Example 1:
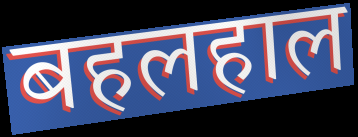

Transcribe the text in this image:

बहलहाल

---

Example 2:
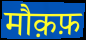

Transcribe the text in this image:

मौक़फ़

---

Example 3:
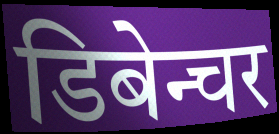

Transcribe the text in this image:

डिबेन्चर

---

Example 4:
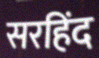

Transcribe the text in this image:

सरहिंद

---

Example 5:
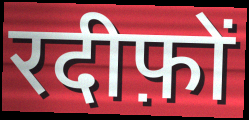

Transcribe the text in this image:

रदीफ़ों